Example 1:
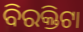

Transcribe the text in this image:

ବିରକ୍ତିଟା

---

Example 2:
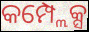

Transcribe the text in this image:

କମ୍ପ୍ଲେକ୍ସ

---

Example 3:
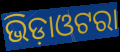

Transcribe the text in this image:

ଭିଡ଼ାଓଟରା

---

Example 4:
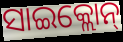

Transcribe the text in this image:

ସାଇକ୍ଲୋନ୍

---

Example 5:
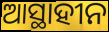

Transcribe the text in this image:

ଆସ୍ଥାହୀନ